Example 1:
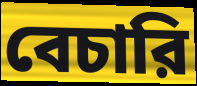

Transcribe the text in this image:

বেচারি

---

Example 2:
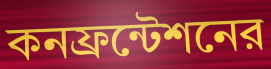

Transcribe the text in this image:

কনফ্রন্টেশনের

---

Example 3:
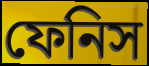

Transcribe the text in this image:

ফেনিস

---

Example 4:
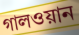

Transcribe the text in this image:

গালওয়ান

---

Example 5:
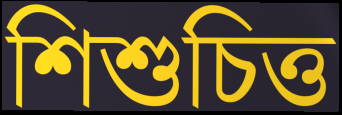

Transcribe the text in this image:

শিশুচিত্ত